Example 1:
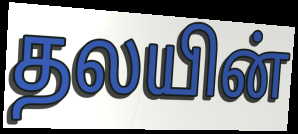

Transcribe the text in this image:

தலயின்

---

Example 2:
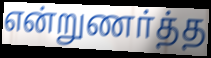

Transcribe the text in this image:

என்றுணர்த்த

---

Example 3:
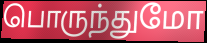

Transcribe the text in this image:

பொருந்துமோ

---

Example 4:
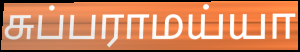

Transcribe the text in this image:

சுப்பராமய்யா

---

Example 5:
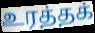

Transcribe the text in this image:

உரத்தக்